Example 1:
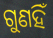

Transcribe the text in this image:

ଗୁଣହିଁ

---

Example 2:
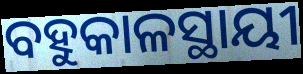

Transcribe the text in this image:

ବହୁକାଳସ୍ଥାୟୀ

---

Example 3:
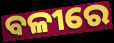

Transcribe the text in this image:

ବଳୀରେ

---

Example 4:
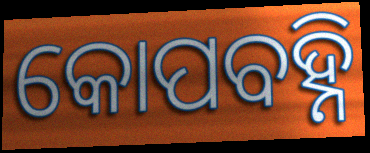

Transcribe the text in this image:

କୋପବହ୍ନି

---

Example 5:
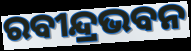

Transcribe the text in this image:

ରବୀନ୍ଦ୍ରଭବନ